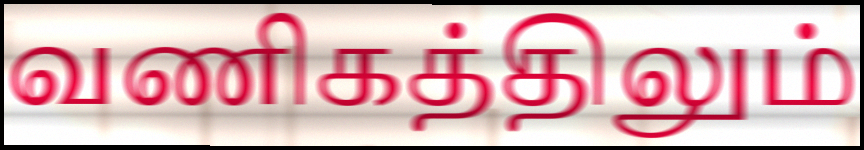
வணிகத்திலும்